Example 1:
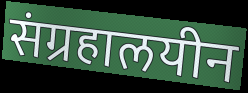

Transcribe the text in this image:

संग्रहालयीन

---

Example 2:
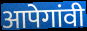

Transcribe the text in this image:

आपेगांवी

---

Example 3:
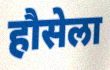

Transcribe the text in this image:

हौसेला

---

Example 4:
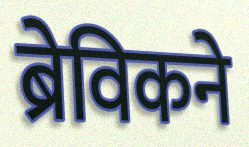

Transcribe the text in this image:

ब्रेविकने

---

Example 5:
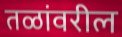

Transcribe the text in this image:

तळांवरील